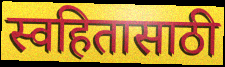
स्वहितासाठी